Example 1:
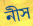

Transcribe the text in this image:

নীস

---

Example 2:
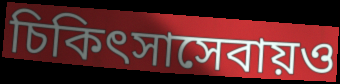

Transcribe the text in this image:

চিকিৎসাসেবায়ও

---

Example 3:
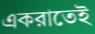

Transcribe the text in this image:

একরাতেই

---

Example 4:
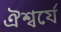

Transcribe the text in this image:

ঐশ্বর্যে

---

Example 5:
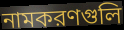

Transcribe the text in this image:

নামকরণগুলি